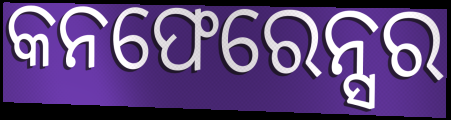
କନଫେରେନ୍ସର